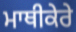
ਮਾਥੀਕੇਰੇ